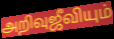
அறிவுஜீவியும்